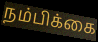
நம்பிக்கை